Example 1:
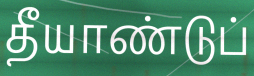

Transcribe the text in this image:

தீயாண்டுப்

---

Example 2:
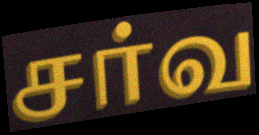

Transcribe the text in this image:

சர்வ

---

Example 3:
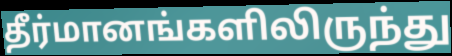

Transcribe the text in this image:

தீர்மானங்களிலிருந்து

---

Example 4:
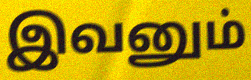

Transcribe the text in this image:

இவனும்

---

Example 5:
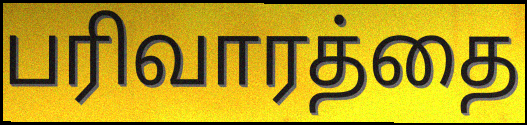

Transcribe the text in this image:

பரிவாரத்தை